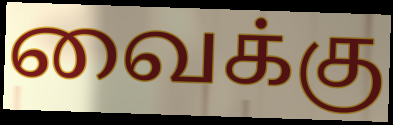
வைக்கு